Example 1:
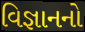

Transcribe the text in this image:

વિજ્ઞાનનો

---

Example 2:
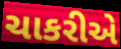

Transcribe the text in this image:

ચાકરીએ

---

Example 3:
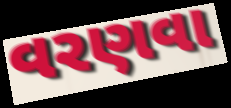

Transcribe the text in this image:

વરણવા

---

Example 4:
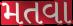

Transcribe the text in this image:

મતવા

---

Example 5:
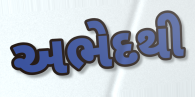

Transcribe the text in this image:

અભેદથી